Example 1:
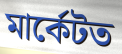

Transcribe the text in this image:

মাৰ্কেটত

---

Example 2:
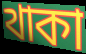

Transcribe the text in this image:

থাকা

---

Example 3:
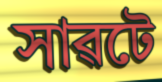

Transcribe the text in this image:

সাৱটে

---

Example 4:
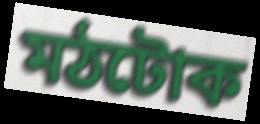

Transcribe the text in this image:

মঠটোক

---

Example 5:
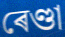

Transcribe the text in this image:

ৰেণ্ডা